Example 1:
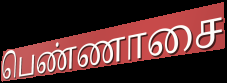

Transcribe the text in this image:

பெண்ணாசை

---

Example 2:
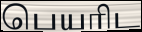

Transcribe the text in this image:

பெயரிட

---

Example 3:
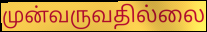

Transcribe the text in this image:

முன்வருவதில்லை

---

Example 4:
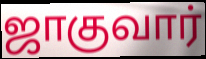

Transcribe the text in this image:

ஜாகுவார்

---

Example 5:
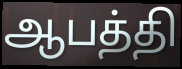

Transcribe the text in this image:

ஆபத்தி